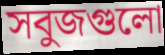
সবুজগুলো